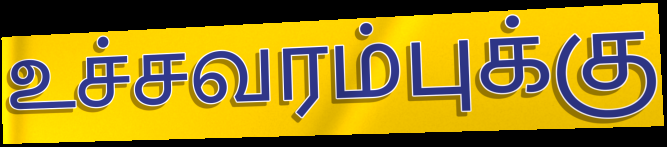
உச்சவரம்புக்கு